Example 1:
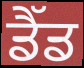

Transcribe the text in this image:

ਡੈੱਡ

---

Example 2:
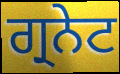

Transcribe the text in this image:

ਗ੍ਰਨੇਟ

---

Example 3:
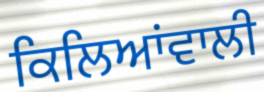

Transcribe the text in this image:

ਕਿਲਿਆਂਵਾਲੀ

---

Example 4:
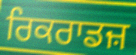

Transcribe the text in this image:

ਰਿਕਰਾਡਜ਼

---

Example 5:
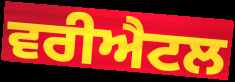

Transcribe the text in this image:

ਵਰੀਐਟਲ